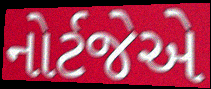
નોર્ટજેએ